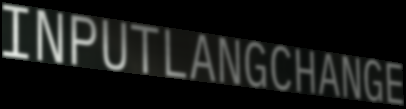
INPUTLANGCHANGE